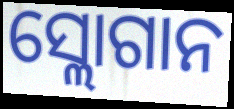
ସ୍ଲୋଗାନ